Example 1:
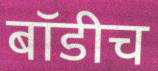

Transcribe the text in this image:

बॉडीच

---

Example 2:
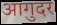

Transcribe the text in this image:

आगुदर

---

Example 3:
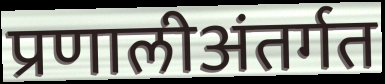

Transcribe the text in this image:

प्रणालीअंतर्गत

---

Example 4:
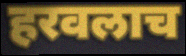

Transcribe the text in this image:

हरवलाच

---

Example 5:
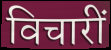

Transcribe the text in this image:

विचारीं